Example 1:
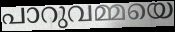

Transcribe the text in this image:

പാറുവമ്മയെ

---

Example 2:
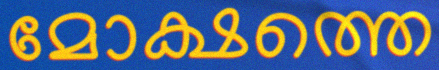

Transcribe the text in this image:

മോക്ഷത്തെ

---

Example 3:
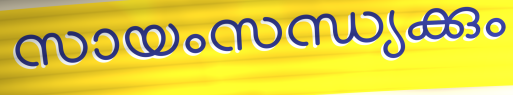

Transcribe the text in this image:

സായംസന്ധ്യക്കും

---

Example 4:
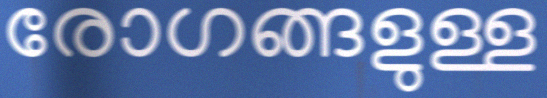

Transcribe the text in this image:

രോഗങ്ങളുള്ള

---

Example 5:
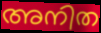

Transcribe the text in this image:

അനിത